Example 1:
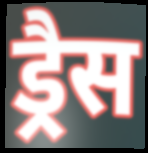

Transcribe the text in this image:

ड्रैस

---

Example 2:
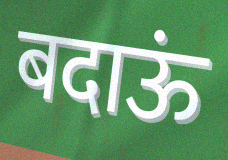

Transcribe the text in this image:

बदाऊं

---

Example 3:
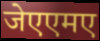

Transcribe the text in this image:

जेएएमए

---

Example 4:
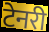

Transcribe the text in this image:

टेनरी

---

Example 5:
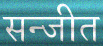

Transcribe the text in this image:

सन्जीत